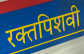
रक्तपिशवी